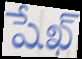
షేఖ్